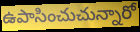
ఉపాసించుచున్నారో